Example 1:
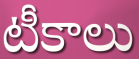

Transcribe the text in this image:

టీకాలు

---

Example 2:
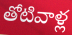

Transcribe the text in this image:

తోటివాళ్ల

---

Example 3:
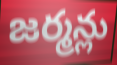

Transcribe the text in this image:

జర్మన్లు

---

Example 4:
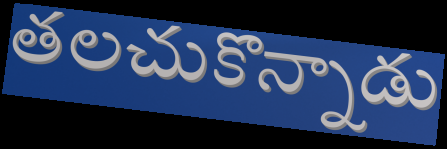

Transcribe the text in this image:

తలచుకొన్నాడు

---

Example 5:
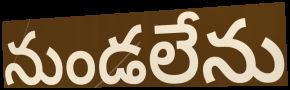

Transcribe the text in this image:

నుండలేను